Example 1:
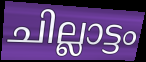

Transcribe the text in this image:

ചില്ലാട്ടം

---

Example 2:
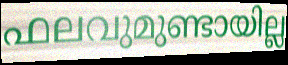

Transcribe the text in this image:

ഫലവുമുണ്ടായില്ല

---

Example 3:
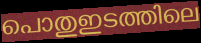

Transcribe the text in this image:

പൊതുഇടത്തിലെ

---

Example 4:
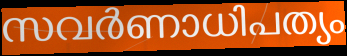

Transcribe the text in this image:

സവർണാധിപത്യം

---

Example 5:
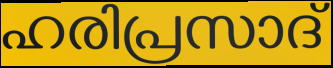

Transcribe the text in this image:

ഹരിപ്രസാദ്